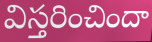
విస్తరించిందా